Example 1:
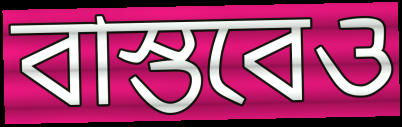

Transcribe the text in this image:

বাস্তবেও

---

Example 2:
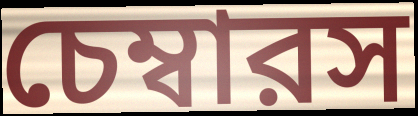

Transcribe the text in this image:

চেম্বারস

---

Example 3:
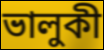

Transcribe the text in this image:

ভালুকী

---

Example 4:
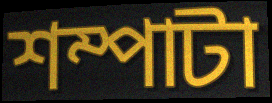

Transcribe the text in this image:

শম্পাটা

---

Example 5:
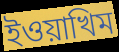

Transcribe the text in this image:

ইওয়াখিম